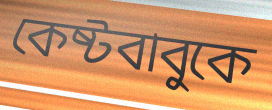
কেষ্টবাবুকে